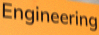
Engineering